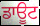
ਡਾਊਟ